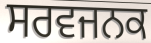
ਸਰਵਜਨਕ